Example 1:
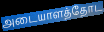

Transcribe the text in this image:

அடையாளத்தோட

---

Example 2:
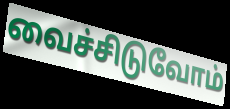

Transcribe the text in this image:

வைச்சிடுவோம்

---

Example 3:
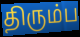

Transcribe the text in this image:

திரும்ப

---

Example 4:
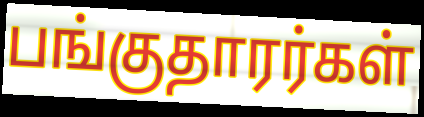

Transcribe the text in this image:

பங்குதாரர்கள்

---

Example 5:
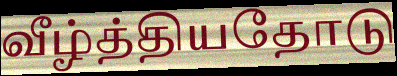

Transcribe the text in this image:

வீழ்த்தியதோடு